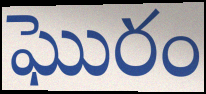
ఘొరం